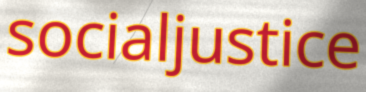
socialjustice